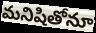
మనిషితోనూ